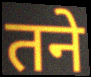
तने